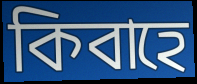
কিবাহে